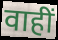
वाहीं